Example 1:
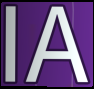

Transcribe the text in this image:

IA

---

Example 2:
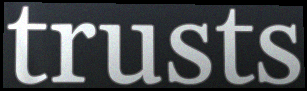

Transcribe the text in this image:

trusts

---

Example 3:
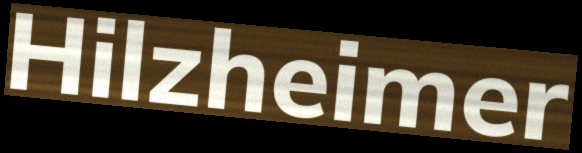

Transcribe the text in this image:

Hilzheimer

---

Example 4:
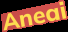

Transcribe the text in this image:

Aneai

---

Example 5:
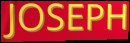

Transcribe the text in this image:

JOSEPH